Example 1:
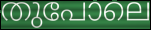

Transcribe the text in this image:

തുപോലെ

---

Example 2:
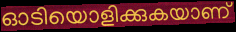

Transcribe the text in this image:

ഓടിയൊളിക്കുകയാണ്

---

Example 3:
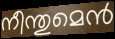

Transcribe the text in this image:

നീന്തുമെൻ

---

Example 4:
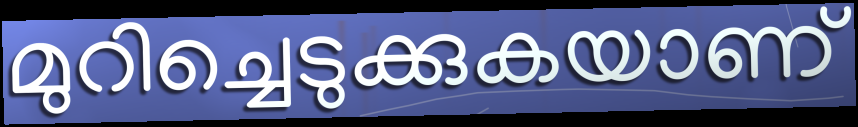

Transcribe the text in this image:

മുറിച്ചെടുക്കുകയാണ്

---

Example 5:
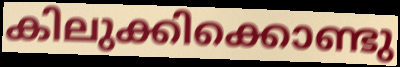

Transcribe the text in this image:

കിലുക്കിക്കൊണ്ടു